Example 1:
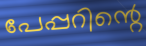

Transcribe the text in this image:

പേപ്പറിന്റെ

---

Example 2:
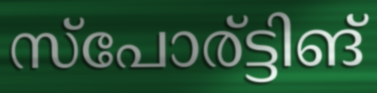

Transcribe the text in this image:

സ്പോര്ട്ടിങ്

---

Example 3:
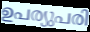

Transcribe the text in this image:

ഉപര്യുപരി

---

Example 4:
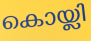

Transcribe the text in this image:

കൊയ്ലി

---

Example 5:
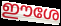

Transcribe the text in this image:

ഈശേ